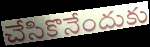
చేసికొనేందుకు